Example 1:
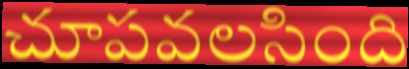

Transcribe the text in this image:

చూపవలసింది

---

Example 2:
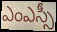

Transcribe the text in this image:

ఎంఎస్సీ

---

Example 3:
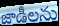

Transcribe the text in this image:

జాడీలను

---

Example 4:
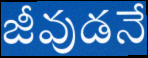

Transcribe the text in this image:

జీవుడనే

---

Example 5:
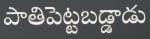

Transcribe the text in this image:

పాతిపెట్టబడ్డాడు